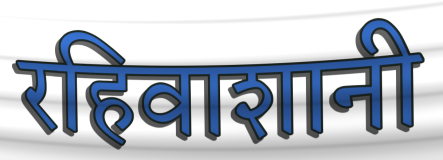
रहिवाशानी